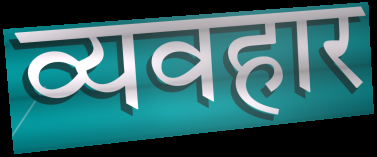
व्‍यवहार